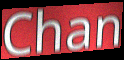
Chan